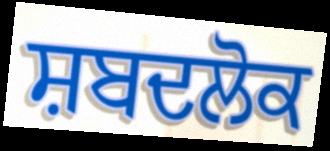
ਸ਼ਬਦਲੋਕ